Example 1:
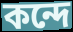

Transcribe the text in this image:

কন্দে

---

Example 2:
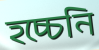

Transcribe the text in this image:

হচ্চেনি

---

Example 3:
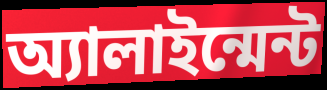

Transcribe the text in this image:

অ্যালাইন্মেন্ট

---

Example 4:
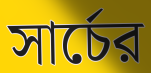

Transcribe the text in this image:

সার্চের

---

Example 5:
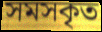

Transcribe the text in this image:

সমসকৃত